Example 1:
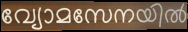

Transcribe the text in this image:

വ്യോമസേനയിൽ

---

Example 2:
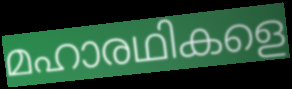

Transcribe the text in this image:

മഹാരഥികളെ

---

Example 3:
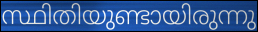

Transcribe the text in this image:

സ്ഥിതിയുണ്ടായിരുന്നു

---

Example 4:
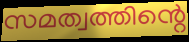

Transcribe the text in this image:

സമത്വത്തിന്റെ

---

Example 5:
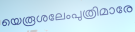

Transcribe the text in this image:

യെരൂശലേംപുത്രിമാരേ